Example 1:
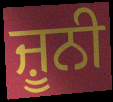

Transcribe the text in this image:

ਜ਼ੂਨੀ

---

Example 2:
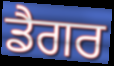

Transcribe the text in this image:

ਡੈਗਰ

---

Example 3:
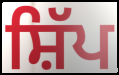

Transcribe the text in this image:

ਸ਼ਿੱਪ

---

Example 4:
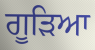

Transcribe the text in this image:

ਗੂੜਿਆ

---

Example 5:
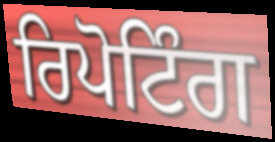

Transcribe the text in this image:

ਰਿਪੋਟਿੰਗ